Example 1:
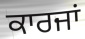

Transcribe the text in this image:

ਕਾਰਜਾਂ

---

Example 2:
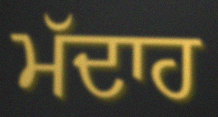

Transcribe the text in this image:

ਮੱਦਾਹ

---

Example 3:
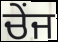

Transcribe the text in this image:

ਚੇਂਜ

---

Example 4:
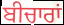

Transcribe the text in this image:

ਬੀਚਾਰਾਂ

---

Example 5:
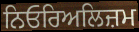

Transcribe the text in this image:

ਨਿਓਰਿਅਲਿਜ਼ਮ